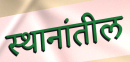
स्थानांतील